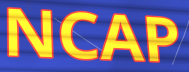
NCAP